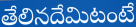
తేలినదేమిటంటే